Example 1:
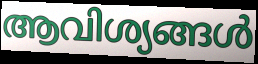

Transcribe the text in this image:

ആവിശ്യങ്ങൾ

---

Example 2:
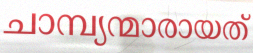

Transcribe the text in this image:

ചാമ്പ്യന്മാരായത്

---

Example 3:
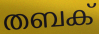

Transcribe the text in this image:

തബക്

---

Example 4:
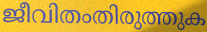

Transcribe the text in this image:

ജീവിതംതിരുത്തുക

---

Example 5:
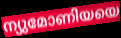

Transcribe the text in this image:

ന്യുമോണിയയെ